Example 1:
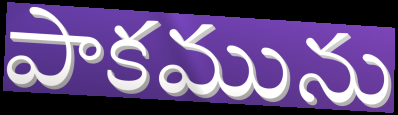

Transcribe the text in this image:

పాకమును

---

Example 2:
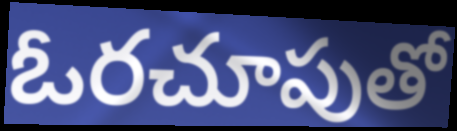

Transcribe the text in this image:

ఓరచూపుతో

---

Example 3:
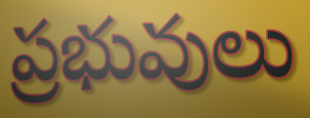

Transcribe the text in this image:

ప్రభువులు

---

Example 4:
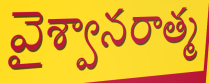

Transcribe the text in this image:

వైశ్వానరాత్మ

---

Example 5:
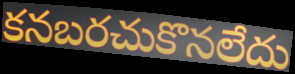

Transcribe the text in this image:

కనబరచుకొనలేదు